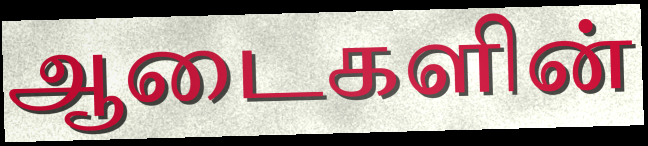
ஆடைகளின்